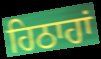
ਹਿਠਾਹਾਂ